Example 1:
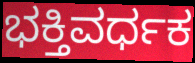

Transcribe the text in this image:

ಭಕ್ತಿವರ್ಧಕ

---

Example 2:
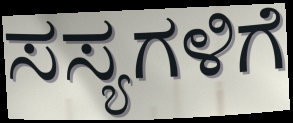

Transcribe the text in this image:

ಸಸ್ಯಗಳಿಗೆ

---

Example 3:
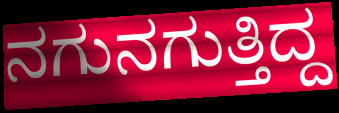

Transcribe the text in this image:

ನಗುನಗುತ್ತಿದ್ದ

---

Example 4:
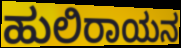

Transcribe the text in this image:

ಹುಲಿರಾಯನ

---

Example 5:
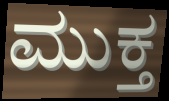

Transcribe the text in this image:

ಮುಕ್ತ